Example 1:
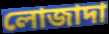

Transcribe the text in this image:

লোজাদা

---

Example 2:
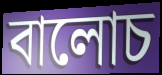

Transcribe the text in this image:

বালোচ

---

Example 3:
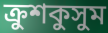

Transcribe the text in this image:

ক্রুশকুসুম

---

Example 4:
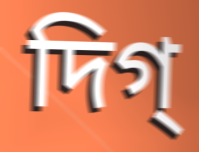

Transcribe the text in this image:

দিগ্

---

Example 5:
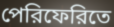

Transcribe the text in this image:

পেরিফেরিতে